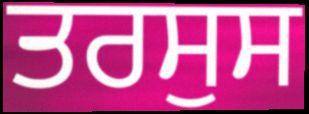
ਤਰਸੁਸ